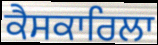
ਕੈਸਕਾਰਿਲਾ